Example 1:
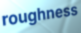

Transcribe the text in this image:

roughness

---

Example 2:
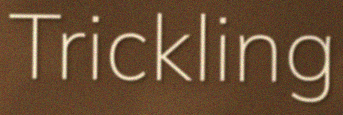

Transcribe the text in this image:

Trickling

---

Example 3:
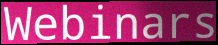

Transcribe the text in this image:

Webinars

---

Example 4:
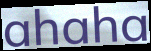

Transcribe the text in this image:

ahaha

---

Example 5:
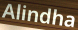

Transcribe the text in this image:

Alindha